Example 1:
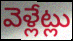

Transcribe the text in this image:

వెళ్లేట్లు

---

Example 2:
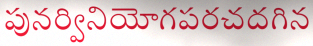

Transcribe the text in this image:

పునర్వినియోగపరచదగిన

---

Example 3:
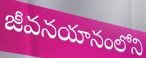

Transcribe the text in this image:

జీవనయానంలోని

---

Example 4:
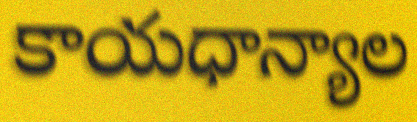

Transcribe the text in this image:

కాయధాన్యాల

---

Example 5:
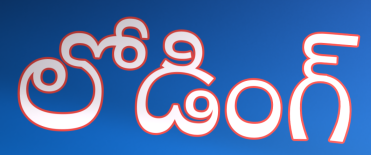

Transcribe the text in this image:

లోడింగ్